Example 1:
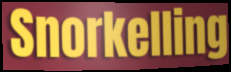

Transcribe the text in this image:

Snorkelling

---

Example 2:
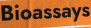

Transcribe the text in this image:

Bioassays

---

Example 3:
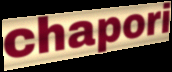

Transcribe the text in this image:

chapori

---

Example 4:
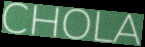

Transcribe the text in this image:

CHOLA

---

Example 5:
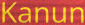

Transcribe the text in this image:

Kanun